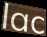
lac